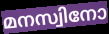
മനസ്വിനോ